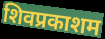
शिवप्रकाशम